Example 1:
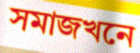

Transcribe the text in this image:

সমাজখনে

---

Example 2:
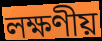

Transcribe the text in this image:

লক্ষণীয়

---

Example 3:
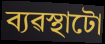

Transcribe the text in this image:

ব্যৱস্থাটো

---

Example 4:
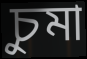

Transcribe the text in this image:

চুমা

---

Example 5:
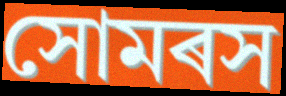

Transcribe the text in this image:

সোমৰস